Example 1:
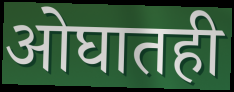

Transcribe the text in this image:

ओघातही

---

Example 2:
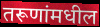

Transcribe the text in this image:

तरूणांमधील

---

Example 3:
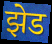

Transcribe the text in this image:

झेड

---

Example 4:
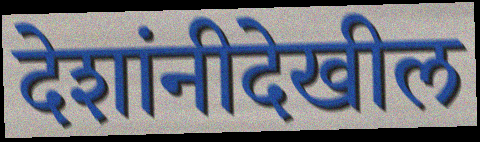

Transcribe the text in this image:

देशांनीदेखील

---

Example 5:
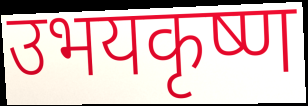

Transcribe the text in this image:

उभयकृष्ण